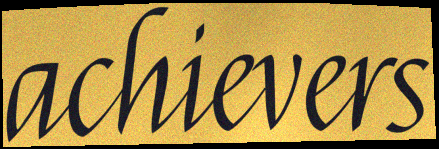
achievers